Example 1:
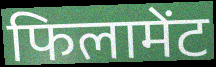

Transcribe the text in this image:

फिलामेंट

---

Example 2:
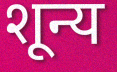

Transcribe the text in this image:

शून्य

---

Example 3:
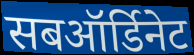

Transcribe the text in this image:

सबऑर्डिनेट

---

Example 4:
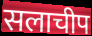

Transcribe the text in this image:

सलाचीप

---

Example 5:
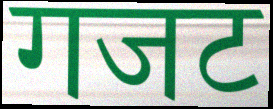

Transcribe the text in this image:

गजट